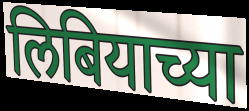
लिबियाच्या